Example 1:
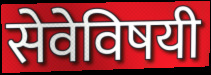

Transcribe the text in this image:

सेवेविषयी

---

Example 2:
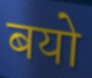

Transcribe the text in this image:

बयो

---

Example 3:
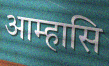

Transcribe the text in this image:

आम्हासि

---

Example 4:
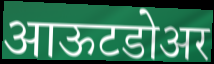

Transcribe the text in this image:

आऊटडोअर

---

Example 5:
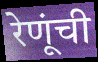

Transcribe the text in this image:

रेणूंची